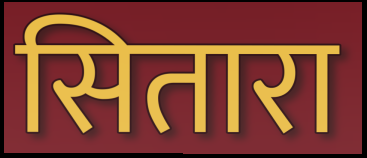
सितारा